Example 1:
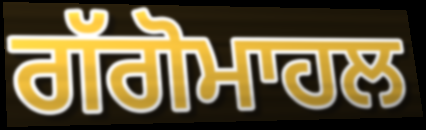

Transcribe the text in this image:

ਗੱਗੋਮਾਹਲ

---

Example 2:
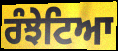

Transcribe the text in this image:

ਰੰਝੇਟਿਆ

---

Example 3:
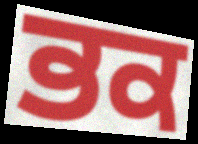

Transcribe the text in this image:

ਭਕ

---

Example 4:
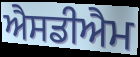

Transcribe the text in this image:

ਐਸਡੀਐਮ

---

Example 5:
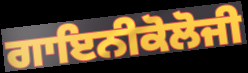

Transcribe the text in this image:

ਗਾਇਨੀਕੋਲੋਜੀ